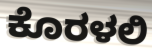
ಕೊರಳಲಿ